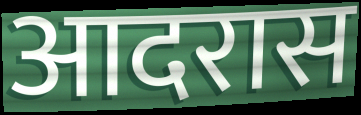
आदरास